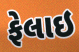
ફેલાઇ